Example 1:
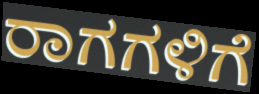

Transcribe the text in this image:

ರಾಗಗಳಿಗೆ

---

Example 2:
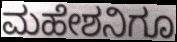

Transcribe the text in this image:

ಮಹೇಶನಿಗೂ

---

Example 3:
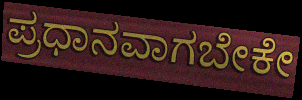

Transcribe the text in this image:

ಪ್ರಧಾನವಾಗಬೇಕೇ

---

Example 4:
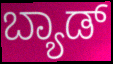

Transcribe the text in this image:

ಬ್ಯಾಡ್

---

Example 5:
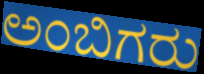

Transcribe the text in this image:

ಅಂಬಿಗರು